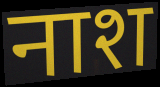
नाश